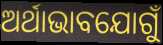
ଅର୍ଥାଭାବଯୋଗୁଁ